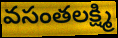
వసంతలక్ష్మి